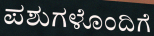
ಪಶುಗಳೊಂದಿಗೆ